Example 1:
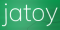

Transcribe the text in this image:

jatoy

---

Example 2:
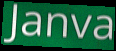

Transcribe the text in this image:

Janva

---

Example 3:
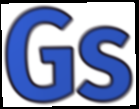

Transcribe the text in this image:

Gs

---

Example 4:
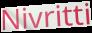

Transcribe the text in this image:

Nivritti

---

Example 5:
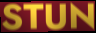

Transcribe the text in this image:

STUN